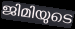
ജിമിയുടെ